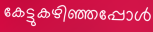
കേട്ടുകഴിഞ്ഞപ്പോൾ